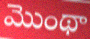
మొంథా